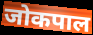
जोकपाल